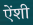
ऐंशी